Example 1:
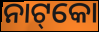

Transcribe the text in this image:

ନାଟ୍‌କୋ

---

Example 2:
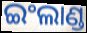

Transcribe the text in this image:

ଇଂଲାଣ୍ଡ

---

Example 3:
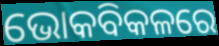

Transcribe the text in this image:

ଭୋକବିକଳରେ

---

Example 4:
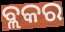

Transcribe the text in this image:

ବ୍ଲକର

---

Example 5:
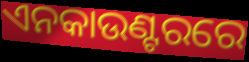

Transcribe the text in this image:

ଏନକାଉଣ୍ଟରରେ